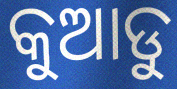
କୁଆଡୁ